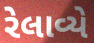
રેલાવ્યે